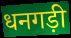
धनगड़ी